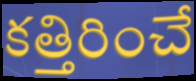
కత్తిరించే